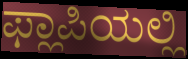
ಫ್ಲಾಪಿಯಲ್ಲಿ